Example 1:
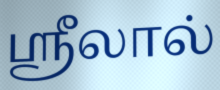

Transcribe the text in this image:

ஸ்ரீலால்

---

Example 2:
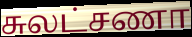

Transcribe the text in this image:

சுலட்சணா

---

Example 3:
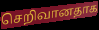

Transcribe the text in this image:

செறிவானதாக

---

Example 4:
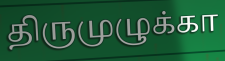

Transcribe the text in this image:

திருமுழுக்கா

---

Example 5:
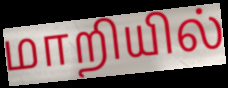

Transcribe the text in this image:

மாறியில்